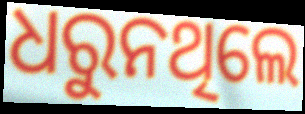
ଧରୁନଥିଲେ